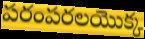
పరంపరలయొక్క